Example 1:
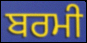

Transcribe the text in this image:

ਬਰਮੀ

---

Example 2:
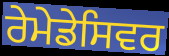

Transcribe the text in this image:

ਰੇਮੇਡੇਸਿਵਰ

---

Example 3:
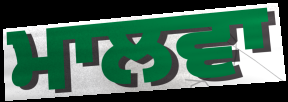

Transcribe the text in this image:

ਮਾਲਵਾ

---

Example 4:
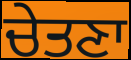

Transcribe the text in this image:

ਚੇਤਣਾ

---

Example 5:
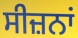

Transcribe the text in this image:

ਸੀਜ਼ਨਾਂ